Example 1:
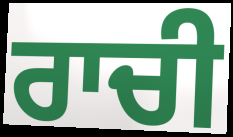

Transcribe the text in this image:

ਰਾਚੀ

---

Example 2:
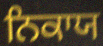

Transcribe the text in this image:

ਨਿਕਾਯ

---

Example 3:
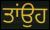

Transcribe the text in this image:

ਤਾਂਉਹ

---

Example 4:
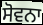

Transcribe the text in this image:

ਸੋਵਨਾ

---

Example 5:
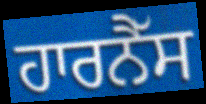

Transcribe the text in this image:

ਹਾਰਨੈੱਸ